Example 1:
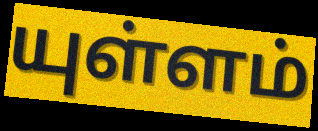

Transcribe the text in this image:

யுள்ளம்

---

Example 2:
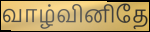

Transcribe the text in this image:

வாழ்வினிதே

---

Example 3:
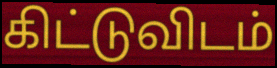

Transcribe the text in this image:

கிட்டுவிடம்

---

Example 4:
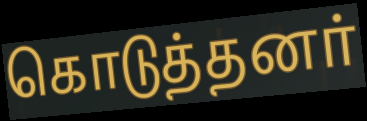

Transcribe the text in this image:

கொடுத்தனர்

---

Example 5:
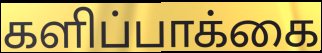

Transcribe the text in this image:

களிப்பாக்கை